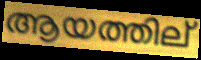
ആയത്തില്